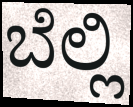
ಬೆಲ್ಲಿ